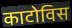
काटोविस